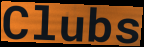
Clubs